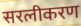
सरलीकरण